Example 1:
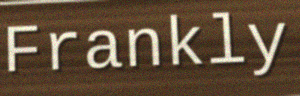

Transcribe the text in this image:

Frankly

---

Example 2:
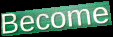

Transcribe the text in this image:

Become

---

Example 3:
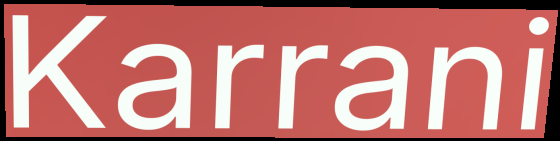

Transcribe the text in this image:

Karrani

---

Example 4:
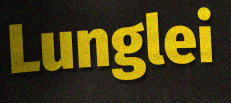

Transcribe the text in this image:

Lunglei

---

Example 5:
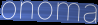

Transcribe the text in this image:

onoma